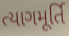
ત્યાગમૂર્તિ